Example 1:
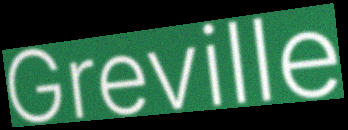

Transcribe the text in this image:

Greville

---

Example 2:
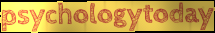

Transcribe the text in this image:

psychologytoday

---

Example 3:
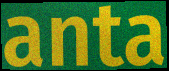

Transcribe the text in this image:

anta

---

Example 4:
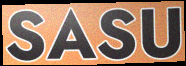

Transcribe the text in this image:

SASU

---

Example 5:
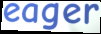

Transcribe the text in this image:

eager